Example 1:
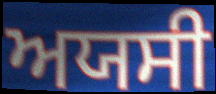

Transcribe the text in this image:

ਅਯਸੀ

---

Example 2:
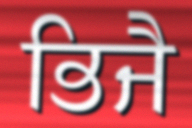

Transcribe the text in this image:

ਭਿਜੈ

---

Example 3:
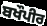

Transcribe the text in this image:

ਬਖੌਪੀਰ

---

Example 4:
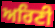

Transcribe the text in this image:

ਅਰਿਣੀ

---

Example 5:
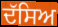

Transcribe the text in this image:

ਦੱਸਿਅ